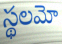
స్థలమో